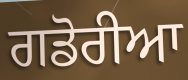
ਗਡੋਰੀਆ